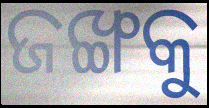
ଜଙ୍ଖକୁ